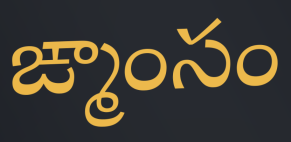
ఙ్మాంసం